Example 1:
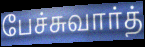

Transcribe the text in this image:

பேச்சுவார்த்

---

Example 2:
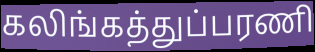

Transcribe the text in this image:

கலிங்கத்துப்பரணி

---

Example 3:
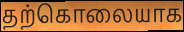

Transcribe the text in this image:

தற்கொலையாக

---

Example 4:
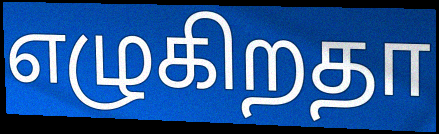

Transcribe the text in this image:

எழுகிறதா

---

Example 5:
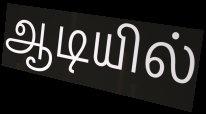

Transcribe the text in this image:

ஆடியில்